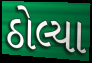
ઠોલ્યા